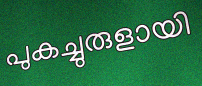
പുകച്ചുരുളായി